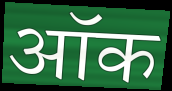
ऑक